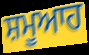
ਸ਼ਮੂਆਹ